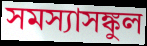
সমস্যাসঙ্কুল